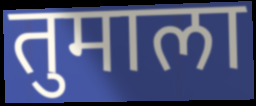
तुमाला